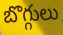
బొగ్గులు